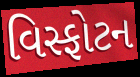
વિસ્ફોટન